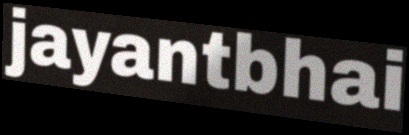
jayantbhai